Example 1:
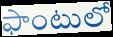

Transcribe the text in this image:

ఫాంటులో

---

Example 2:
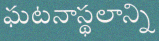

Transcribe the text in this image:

ఘటనాస్థలాన్ని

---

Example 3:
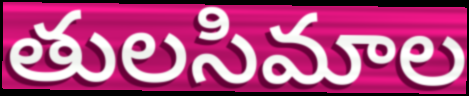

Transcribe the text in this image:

తులసిమాల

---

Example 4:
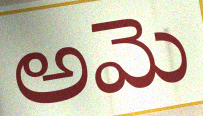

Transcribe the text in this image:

అమె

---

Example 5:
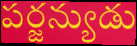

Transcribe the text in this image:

పర్జన్యుడు